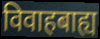
विवाहबाह्य